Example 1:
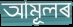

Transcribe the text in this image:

আমূলৰ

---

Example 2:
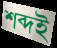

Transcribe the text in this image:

শব্দই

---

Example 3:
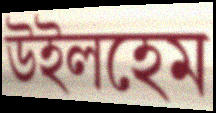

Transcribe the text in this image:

উইলহেম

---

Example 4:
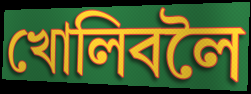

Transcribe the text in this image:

খোলিবলৈ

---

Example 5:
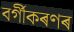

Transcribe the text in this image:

বৰ্গীকৰণৰ